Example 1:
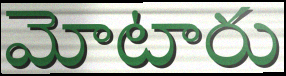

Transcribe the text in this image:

మోటారు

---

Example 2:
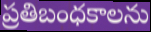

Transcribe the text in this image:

ప్రతిబంధకాలను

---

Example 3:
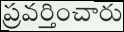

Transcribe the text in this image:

ప్రవర్తించారు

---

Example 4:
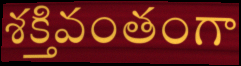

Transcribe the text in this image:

శక్తివంతంగా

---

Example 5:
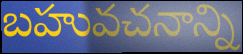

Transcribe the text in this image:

బహువచనాన్ని